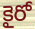
కైరో